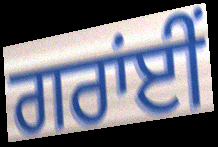
ਗਰਾਂਈਂ